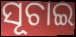
ସୂଚାଇ